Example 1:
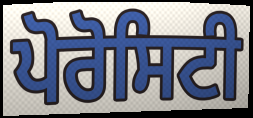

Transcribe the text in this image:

ਪੋਰੋਸਿਟੀ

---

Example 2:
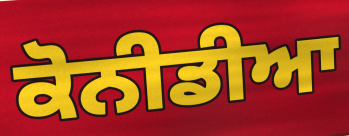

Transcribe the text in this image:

ਕੋਨੀਡੀਆ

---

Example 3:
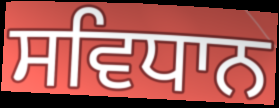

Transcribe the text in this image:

ਸਵਿਧਾਨ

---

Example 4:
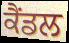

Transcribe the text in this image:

ਕੈਂਡਲ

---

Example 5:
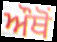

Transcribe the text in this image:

ਔਥੋਂ